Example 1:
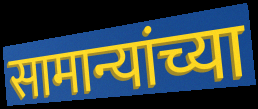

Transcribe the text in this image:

सामान्यांच्या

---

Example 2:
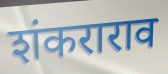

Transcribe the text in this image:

शंकराराव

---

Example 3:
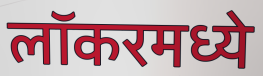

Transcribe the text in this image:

लॉकरमध्ये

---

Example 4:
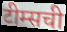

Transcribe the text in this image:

टीम्सची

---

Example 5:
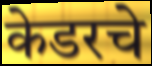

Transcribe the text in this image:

केडरचे